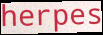
herpes